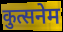
कुत्सनेम